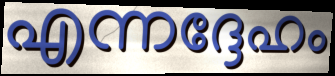
എന്നദ്ദേഹം